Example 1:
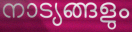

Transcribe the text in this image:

നാട്യങ്ങളും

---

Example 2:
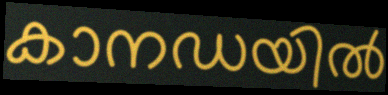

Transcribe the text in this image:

കാനഡയിൽ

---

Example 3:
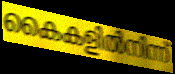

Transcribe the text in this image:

കൈകളിൽനിന്ന്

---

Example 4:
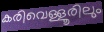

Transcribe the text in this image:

കരിവെള്ളൂരിലും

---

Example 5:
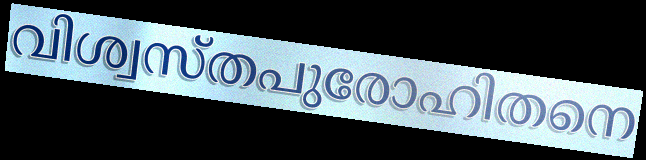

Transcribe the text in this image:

വിശ്വസ്തപുരോഹിതനെ